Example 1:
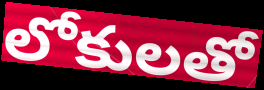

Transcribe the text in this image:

లోకులతో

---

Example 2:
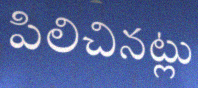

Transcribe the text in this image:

పిలిచినట్లు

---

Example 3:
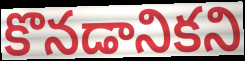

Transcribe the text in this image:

కొనడానికని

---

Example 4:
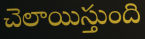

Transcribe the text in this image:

చెలాయిస్తుంది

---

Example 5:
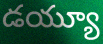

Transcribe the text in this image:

డయ్యూ